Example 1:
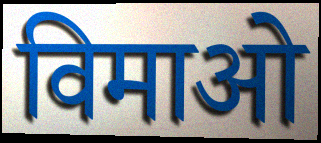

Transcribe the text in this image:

विमाओ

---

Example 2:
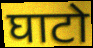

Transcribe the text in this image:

घाटो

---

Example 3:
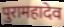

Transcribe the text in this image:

पुरामहादेव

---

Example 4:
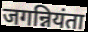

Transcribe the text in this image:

जगन्नियंता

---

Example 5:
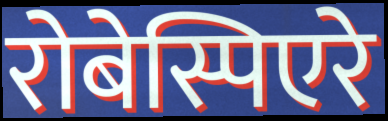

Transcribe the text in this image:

रोबेस्पिएरे